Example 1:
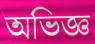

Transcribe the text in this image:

অভিজ্ঞ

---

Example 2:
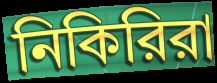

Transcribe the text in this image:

নিকিরিরা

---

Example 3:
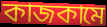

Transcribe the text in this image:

কাজকামে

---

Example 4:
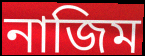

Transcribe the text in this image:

নাজিম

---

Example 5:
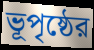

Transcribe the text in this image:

ভূপৃষ্ঠের